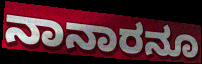
ನಾನಾರನೂ